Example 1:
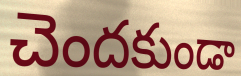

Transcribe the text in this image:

చెందకుండా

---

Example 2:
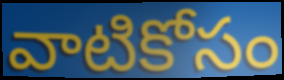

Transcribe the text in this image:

వాటికోసం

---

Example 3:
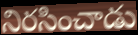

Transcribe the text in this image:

నిరసించాడు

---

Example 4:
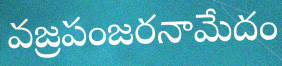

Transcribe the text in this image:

వజ్రపంజరనామేదం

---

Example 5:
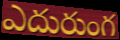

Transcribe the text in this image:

ఎదురుంగ